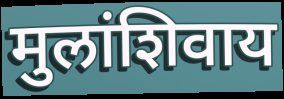
मुलांशिवाय